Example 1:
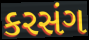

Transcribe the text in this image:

કરસંગ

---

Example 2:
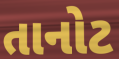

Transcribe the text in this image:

તાનોટ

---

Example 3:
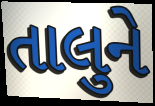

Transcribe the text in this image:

તાલુને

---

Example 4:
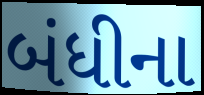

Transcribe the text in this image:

બંધીના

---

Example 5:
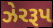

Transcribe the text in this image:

ઝેરરૂપ